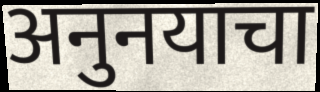
अनुनयाचा